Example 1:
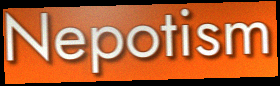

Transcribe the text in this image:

Nepotism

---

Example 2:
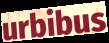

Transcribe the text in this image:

urbibus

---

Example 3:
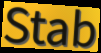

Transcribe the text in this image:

Stab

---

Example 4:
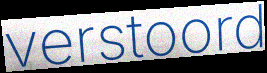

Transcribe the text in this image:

verstoord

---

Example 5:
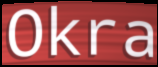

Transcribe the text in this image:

Okra